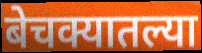
बेचक्यातल्या